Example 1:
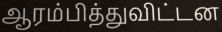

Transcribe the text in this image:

ஆரம்பித்துவிட்டன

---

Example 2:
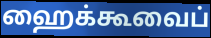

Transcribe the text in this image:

ஹைக்கூவைப்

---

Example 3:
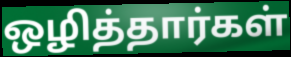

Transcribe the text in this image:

ஒழித்தார்கள்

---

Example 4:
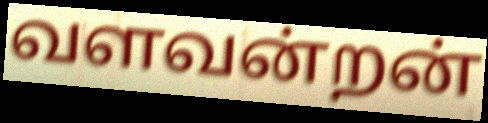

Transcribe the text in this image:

வளவன்றன்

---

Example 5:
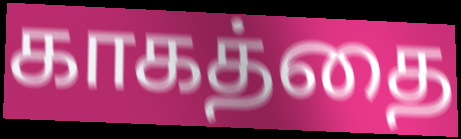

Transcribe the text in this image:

காகத்தை